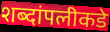
शब्दांपलीकडे